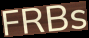
FRBs